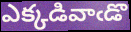
ఎక్కడివాఁడొ